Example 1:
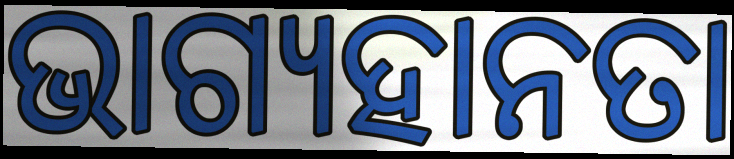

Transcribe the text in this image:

ଭାଗ୍ୟହାନତା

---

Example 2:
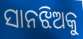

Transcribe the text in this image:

ସାନଝିଅକୁ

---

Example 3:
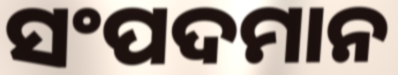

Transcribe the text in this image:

ସଂପଦମାନ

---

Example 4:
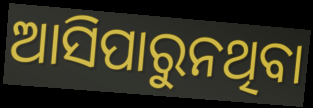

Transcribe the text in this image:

ଆସିପାରୁନଥିବା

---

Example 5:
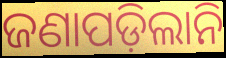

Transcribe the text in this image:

ଜଣାପଡ଼ିଲାନି